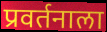
प्रवर्तनाला